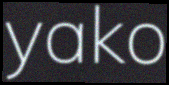
yako